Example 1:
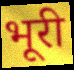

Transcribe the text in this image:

भूरी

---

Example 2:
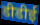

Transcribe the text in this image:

डीडीई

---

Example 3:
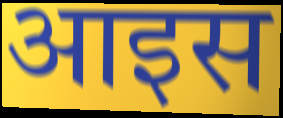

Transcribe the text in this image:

आइस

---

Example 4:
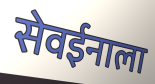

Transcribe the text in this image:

सेवईनाला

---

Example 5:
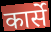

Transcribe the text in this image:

कार्से